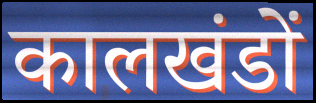
कालखंडों